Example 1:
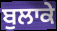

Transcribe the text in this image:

ਬੁਲਾਕੇ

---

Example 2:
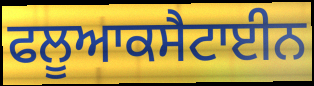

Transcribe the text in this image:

ਫਲੂਆਕਸੈਟਾਈਨ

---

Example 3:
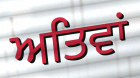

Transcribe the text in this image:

ਅਤਿਵਾਂ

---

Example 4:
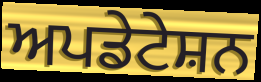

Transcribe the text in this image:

ਅਪਡੇਟੇਸ਼ਨ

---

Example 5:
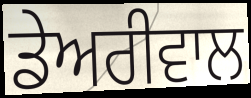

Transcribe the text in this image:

ਡੇਅਰੀਵਾਲ